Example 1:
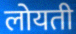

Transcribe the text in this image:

लोयती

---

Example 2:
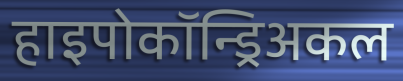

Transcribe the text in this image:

हाइपोकॉन्ड्रिअकल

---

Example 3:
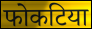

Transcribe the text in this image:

फोकटिया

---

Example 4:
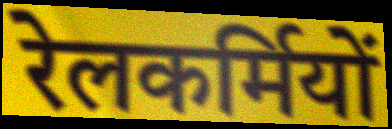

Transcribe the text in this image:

रेलकर्मियों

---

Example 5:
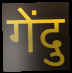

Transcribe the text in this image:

गेंदु